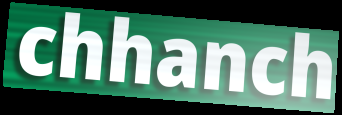
chhanch